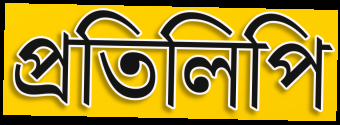
প্রতিলিপি